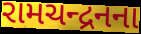
રામચન્દ્રનના